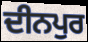
ਦੀਨਪੁਰ